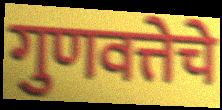
गुणवत्तेचे